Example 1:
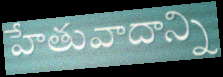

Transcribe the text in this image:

హేతువాదాన్ని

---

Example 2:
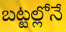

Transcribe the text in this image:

బట్టల్లోనే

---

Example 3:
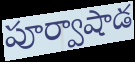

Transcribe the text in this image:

పూర్వాషాడ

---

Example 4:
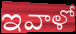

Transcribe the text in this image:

ఇవాళో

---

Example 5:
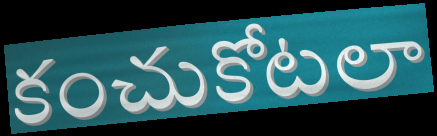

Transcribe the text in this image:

కంచుకోటలా